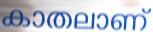
കാതലാണ്